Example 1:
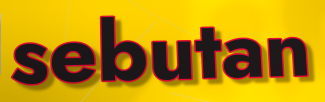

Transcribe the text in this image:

sebutan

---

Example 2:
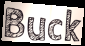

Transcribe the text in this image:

Buck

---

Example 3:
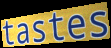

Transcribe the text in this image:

tastes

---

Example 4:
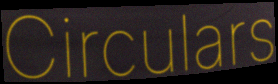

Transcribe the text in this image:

Circulars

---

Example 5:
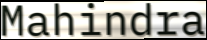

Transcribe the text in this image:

Mahindra